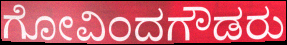
ಗೋವಿಂದಗೌಡರು